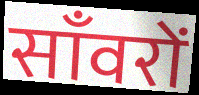
साँवरों